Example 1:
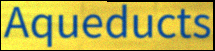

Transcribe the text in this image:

Aqueducts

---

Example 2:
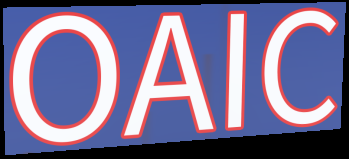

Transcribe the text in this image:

OAIC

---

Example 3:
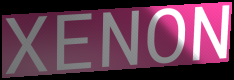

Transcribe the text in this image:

XENON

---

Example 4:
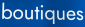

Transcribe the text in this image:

boutiques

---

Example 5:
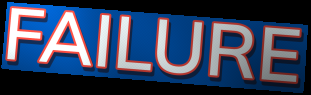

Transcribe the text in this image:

FAILURE